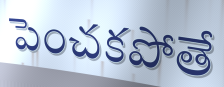
పెంచకపోతే